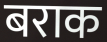
बराक